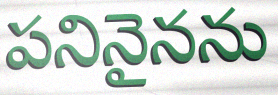
పనినైనను